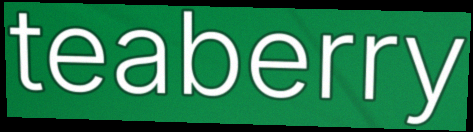
teaberry